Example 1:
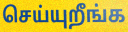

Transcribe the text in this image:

செய்யுறீங்க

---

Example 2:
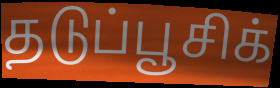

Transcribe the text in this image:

தடுப்பூசிக்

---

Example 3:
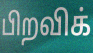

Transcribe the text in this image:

பிறவிக்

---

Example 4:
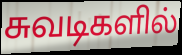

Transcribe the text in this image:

சுவடிகளில்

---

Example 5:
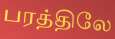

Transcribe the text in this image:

பரத்திலே